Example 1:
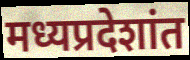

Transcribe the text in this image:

मध्यप्रदेशांत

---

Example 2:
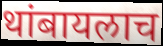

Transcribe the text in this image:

थांबायलाच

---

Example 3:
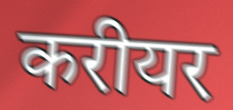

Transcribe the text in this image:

करीयर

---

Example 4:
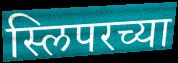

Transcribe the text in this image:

स्लिपरच्या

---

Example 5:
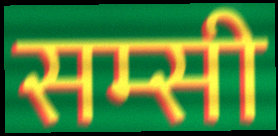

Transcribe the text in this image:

सम्सी